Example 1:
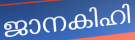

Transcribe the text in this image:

ജാനകിഹി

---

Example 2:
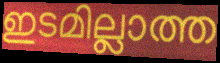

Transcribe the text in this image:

ഇടമില്ലാത്ത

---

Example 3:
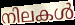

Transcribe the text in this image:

നിലകൾ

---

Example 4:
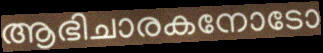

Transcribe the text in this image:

ആഭിചാരകനോടോ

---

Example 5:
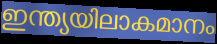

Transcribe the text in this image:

ഇന്ത്യയിലാകമാനം